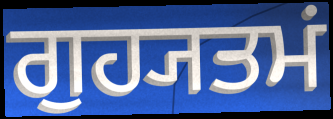
ਗੁਹ੍ਯਤਮਂ